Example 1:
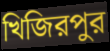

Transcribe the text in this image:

খিজিরপুর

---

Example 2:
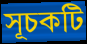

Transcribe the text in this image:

সূচকটি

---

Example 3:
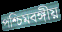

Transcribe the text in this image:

পশ্চিমবঙ্গীয়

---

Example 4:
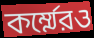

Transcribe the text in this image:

কর্ম্মেরও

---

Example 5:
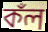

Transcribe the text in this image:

কঁল